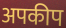
अपकीप